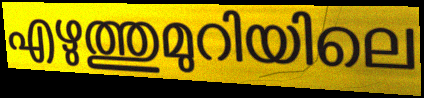
എഴുത്തുമുറിയിലെ